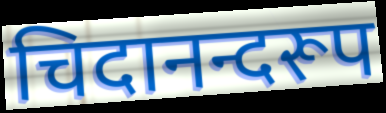
चिदानन्दरूप